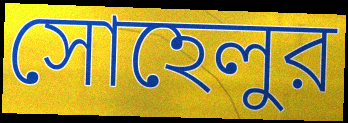
সোহেলুর